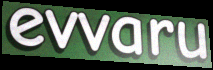
evvaru